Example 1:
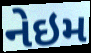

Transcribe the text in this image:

નેઇમ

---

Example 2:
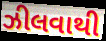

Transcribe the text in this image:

ઝીલવાથી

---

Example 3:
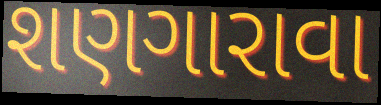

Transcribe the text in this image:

શણગારાવા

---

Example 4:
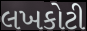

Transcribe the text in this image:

લખકોટી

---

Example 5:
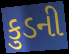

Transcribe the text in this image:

કુડની